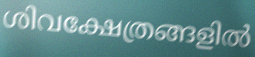
ശിവക്ഷേത്രങ്ങളിൽ